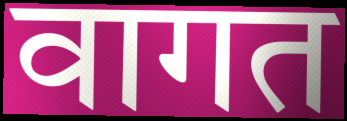
वागत